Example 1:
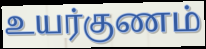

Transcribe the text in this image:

உயர்குணம்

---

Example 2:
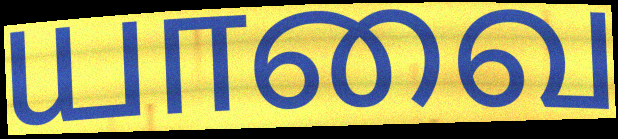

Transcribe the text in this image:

யாவை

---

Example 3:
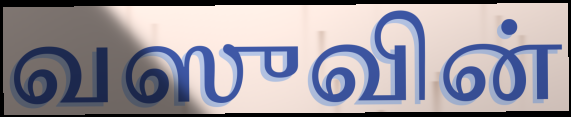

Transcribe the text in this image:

வஸுவின்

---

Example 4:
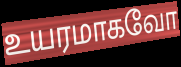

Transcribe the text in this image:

உயரமாகவோ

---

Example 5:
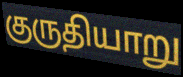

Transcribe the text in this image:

குருதியாறு